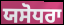
ਯਸੋਧਰਾ